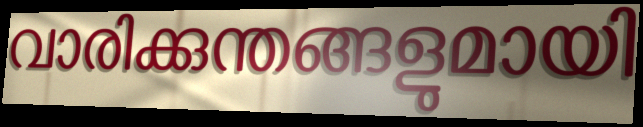
വാരിക്കുന്തങ്ങളുമായി